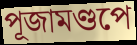
পূজামণ্ডপে